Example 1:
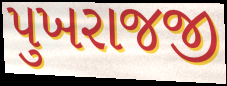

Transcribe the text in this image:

પુખરાજજી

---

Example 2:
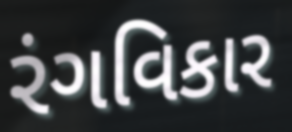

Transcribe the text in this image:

રંગવિકાર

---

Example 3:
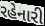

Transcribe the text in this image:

રહેનારી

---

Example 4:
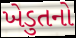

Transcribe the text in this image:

ખેડુતનો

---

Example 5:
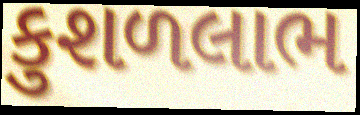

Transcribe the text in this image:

કુશળલાભ